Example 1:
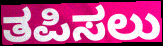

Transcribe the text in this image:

ತಪಿಸಲು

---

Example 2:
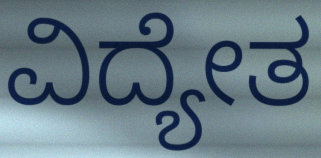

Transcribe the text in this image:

ವಿದ್ಯೇತ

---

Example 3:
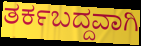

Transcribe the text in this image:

ತರ್ಕಬದ್ದವಾಗಿ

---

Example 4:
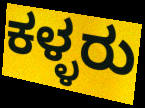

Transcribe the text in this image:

ಕಳ್ಳರು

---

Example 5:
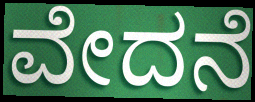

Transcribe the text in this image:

ವೇದನೆ